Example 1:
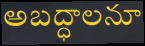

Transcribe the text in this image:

అబద్ధాలనూ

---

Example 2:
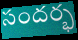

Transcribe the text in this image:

సందర్భ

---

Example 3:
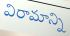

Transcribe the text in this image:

విరామాన్ని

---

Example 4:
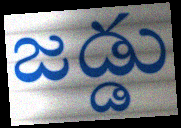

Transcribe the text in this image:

జడ్డు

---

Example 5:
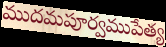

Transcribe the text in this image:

ముదమపూర్వముపేత్య